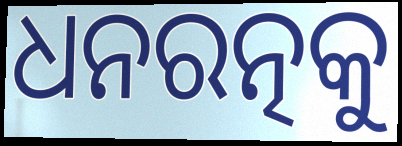
ଧନରତ୍ନକୁ